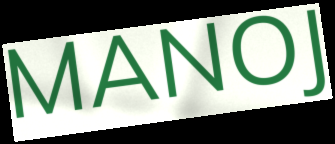
MANOJ